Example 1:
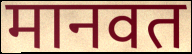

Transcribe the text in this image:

मानवत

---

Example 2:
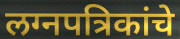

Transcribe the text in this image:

लग्नपत्रिकांचे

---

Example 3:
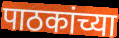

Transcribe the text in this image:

पाठकांच्या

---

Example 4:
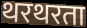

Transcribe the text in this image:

थरथरता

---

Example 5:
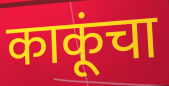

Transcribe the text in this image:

काकूंचा